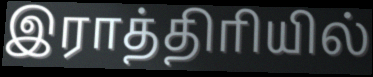
இராத்திரியில்